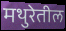
मथुरेतील